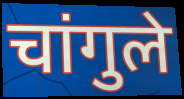
चांगुले